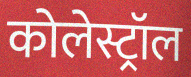
कोलेस्ट्रॉल